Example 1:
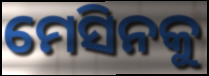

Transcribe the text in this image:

ମେସିନକୁ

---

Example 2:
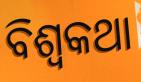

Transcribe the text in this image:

ବିଶ୍ୱକଥା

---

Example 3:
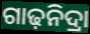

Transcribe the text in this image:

ଗାଢ଼ନିଦ୍ରା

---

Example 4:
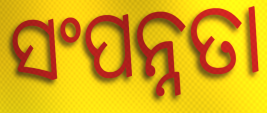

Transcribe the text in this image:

ସଂପନ୍ନତା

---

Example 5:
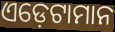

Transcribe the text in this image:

ଏଡ଼େଟାମାନ